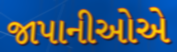
જાપાનીઓએ